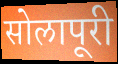
सोलापूरी